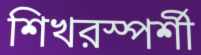
শিখরস্পর্শী